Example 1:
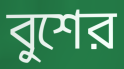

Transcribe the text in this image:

বুশের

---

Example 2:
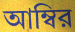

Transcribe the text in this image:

আম্বির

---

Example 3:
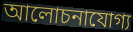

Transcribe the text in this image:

আলোচনাযোগ্য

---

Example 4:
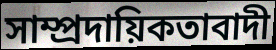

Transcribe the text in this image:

সাম্প্রদায়িকতাবাদী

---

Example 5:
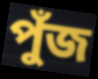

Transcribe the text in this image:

পুঁজ